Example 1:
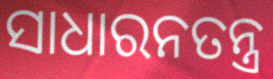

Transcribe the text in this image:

ସାଧାରନତନ୍ତ୍ର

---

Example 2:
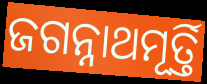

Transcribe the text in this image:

ଜଗନ୍ନାଥମୂର୍ତ୍ତି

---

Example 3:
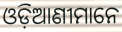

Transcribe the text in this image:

ଓଡ଼ିଆଣୀମାନେ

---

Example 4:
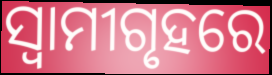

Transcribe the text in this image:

ସ୍ଵାମୀଗୃହରେ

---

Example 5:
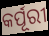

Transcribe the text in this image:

କର୍ପୂରୀ